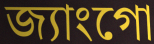
জ্যাংগো